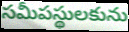
సమీపస్థులకును